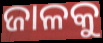
ଜାଳକୁ